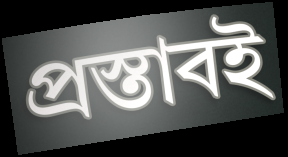
প্রস্তাবই